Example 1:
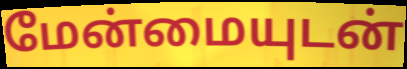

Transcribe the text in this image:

மேன்மையுடன்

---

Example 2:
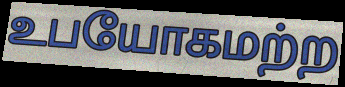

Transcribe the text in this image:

உபயோகமற்ற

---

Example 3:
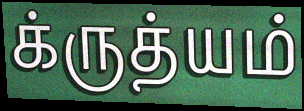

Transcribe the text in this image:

க்ருத்யம்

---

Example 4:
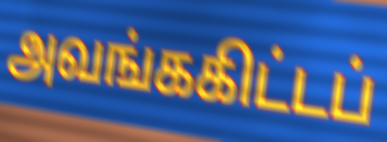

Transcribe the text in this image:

அவங்ககிட்டப்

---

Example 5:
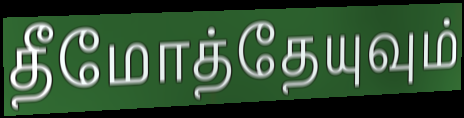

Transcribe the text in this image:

தீமோத்தேயுவும்